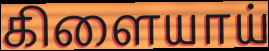
கிளையாய்